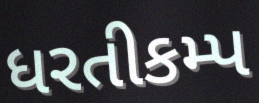
ધરતીકમ્પ